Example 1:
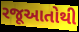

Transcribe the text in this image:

રજૂઆતોથી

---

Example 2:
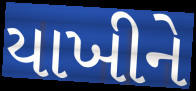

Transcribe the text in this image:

યાખીને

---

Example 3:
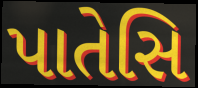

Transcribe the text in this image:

પાતેસિ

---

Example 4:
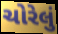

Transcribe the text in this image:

ચોરેલું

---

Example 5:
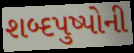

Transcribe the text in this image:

શબ્દપુષ્પોની